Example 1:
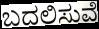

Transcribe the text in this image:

ಬದಲಿಸುವೆ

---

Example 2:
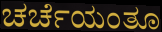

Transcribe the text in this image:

ಚರ್ಚೆಯಂತೂ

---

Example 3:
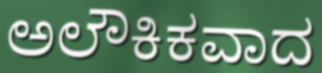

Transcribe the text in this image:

ಅಲೌಕಿಕವಾದ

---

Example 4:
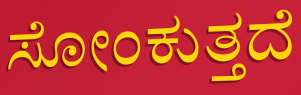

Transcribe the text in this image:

ಸೋಂಕುತ್ತದೆ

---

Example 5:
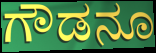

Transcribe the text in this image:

ಗೌಡನೂ